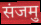
संजमु